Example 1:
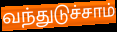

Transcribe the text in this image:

வந்துடுச்சாம்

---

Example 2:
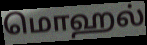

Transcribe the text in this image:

மொஹல்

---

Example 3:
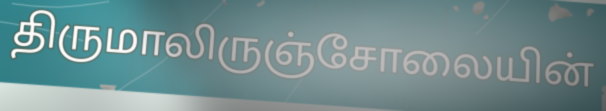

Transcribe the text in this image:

திருமாலிருஞ்சோலையின்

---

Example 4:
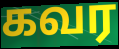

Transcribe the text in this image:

கவர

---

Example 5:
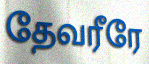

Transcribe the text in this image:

தேவரீரே